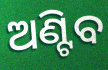
ଅଣ୍ଟିବ